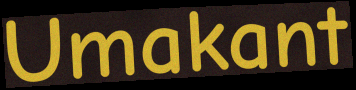
Umakant